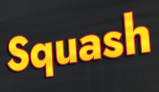
Squash